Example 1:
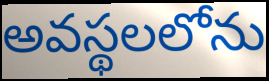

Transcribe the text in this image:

అవస్థలలోను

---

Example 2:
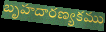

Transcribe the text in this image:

బృహదారణ్యకము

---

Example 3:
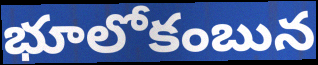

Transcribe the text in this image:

భూలోకంబున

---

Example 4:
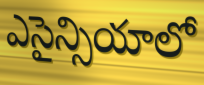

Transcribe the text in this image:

ఎసైన్సియాలో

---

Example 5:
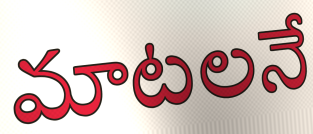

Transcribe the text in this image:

మాటలనే